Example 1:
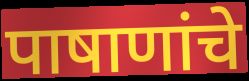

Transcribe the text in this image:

पाषाणांचे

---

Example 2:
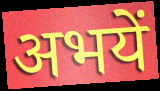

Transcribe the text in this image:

अभयें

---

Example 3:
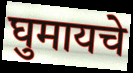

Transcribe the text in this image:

घुमायचे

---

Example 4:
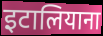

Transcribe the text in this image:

इटालियाना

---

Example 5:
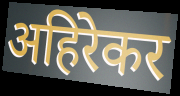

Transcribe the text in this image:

अहिरेकर